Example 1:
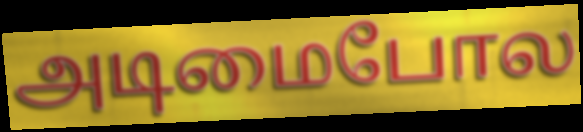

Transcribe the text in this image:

அடிமைபோல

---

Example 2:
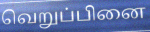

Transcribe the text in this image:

வெறுப்பினை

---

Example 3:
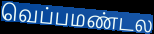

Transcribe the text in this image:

வெப்பமண்டல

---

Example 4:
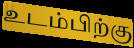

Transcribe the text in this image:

உடம்பிற்கு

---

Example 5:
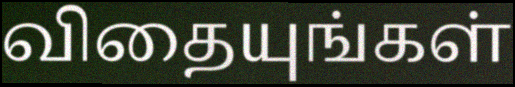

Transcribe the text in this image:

விதையுங்கள்